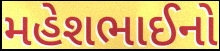
મહેશભાઈનો